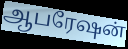
ஆபரேஷன்